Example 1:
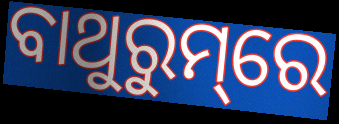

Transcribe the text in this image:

ବାଥୁରୁମ୍‌ରେ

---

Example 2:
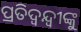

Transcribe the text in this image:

ପ୍ରତିଦ୍ଵନ୍ଦ୍ୱୀଙ୍କୁ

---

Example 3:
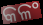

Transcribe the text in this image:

କଳଂ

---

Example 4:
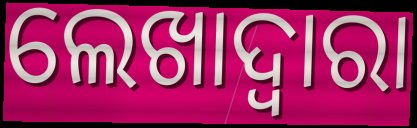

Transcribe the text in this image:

ଲେଖାଦ୍ୱାରା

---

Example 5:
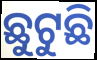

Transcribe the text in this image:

ଛୁଟୁଛି